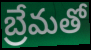
బ్రేమతో